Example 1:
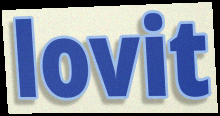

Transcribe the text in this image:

lovit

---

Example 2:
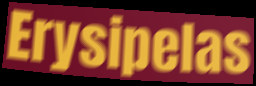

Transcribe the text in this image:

Erysipelas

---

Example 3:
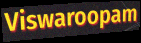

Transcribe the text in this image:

Viswaroopam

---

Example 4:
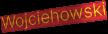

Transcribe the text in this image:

Wojciehowski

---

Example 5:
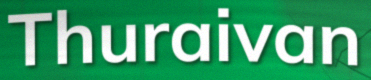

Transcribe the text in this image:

Thuraivan